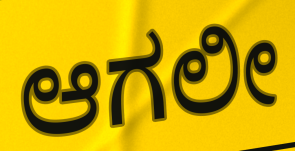
ಆಗಲೀ